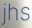
jhs